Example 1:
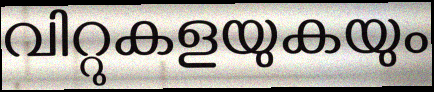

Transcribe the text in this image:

വിറ്റുകളയുകയും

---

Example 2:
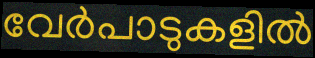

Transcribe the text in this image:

വേർപാടുകളിൽ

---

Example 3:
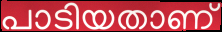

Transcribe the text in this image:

പാടിയതാണ്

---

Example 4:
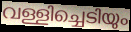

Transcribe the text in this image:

വള്ളിച്ചെടിയും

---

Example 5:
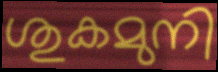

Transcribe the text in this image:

ശുകമുനി